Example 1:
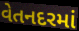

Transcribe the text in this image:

વેતનદરમાં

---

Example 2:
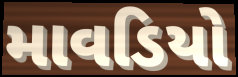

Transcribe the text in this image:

માવડિયો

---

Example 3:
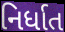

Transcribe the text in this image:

નિર્ધાત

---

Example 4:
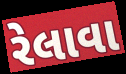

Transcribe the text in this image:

રેલાવા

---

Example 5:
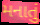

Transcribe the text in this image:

મનાતું